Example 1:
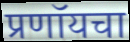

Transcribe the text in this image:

प्रणॉयचा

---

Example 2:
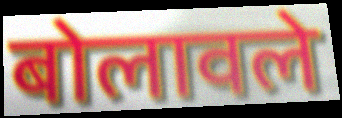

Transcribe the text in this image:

बोलावले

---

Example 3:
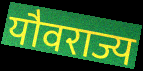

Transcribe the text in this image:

यौवराज्य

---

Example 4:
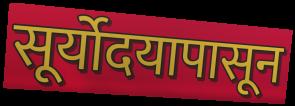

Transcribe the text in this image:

सूर्योदयापासून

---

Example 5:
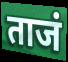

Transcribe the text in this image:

ताजं